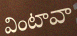
వింటావా